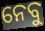
ନେବୁ